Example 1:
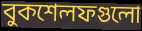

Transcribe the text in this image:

বুকশেলফগুলো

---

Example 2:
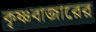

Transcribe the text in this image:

কৃষ্ণবাজারের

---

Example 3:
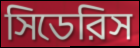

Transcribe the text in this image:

সিডেরিস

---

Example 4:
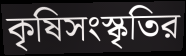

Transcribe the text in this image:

কৃষিসংস্কৃতির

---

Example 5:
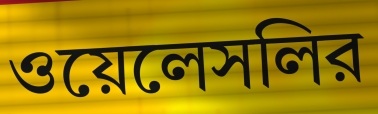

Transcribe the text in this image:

ওয়েলেসলির